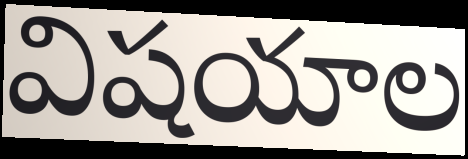
విషయాల